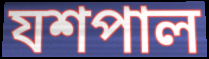
যশপাল